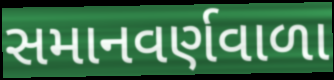
સમાનવર્ણવાળા